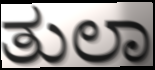
ತುಲಾ